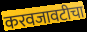
करवजावटीचा